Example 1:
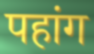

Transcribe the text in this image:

पहांग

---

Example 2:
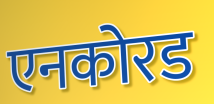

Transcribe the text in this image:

एनकोरड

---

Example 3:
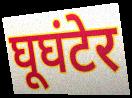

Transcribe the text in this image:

घूघंटेर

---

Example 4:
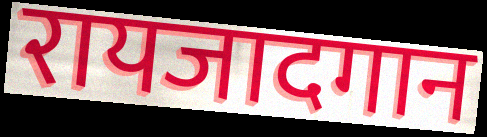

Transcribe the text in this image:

रायजादगान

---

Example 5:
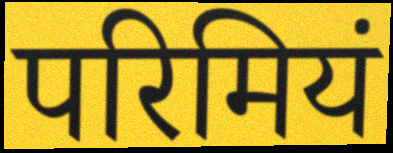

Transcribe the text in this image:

परिमियं